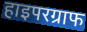
हाइपरग्राफ